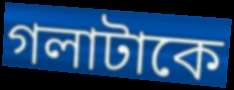
গলাটাকে